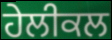
ਹੇਲੀਕਲ